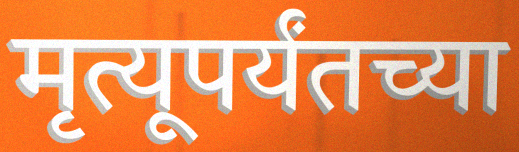
मृत्यूपर्यंतच्या